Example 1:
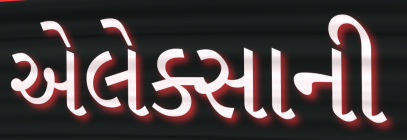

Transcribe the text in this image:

એલેક્સાની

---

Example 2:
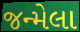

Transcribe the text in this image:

જન્મેલા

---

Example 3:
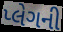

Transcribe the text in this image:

પ્લેગની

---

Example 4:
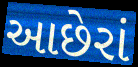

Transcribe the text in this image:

આછેરાં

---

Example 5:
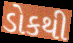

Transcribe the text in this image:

ડોકથી